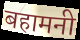
बहामनी